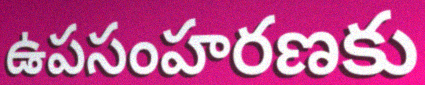
ఉపసంహరణకు